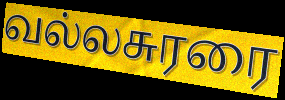
வல்லசுரரை